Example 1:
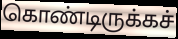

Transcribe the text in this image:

கொண்டிருக்கச்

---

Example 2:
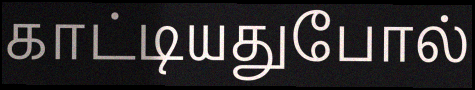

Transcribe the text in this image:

காட்டியதுபோல்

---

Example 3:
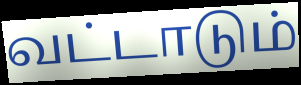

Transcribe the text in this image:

வட்டாடும்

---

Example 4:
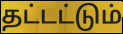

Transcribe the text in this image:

தட்டட்டும்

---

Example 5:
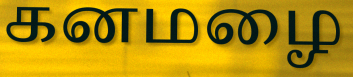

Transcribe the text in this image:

கனமழை